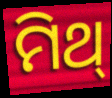
ମିଥ୍